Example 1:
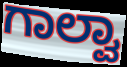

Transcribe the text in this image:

ಗಾಲ್ವಾ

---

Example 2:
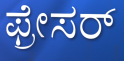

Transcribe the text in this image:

ಫ್ರೇಸರ್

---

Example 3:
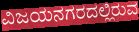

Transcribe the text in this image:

ವಿಜಯನಗರದಲ್ಲಿರುವ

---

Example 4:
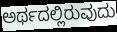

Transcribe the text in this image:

ಅರ್ಥದಲ್ಲಿರುವುದು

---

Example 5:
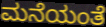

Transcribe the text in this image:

ಮನೆಯಂತೆ